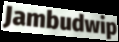
Jambudwip